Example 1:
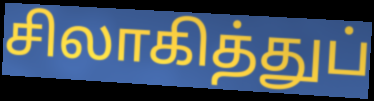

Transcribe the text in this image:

சிலாகித்துப்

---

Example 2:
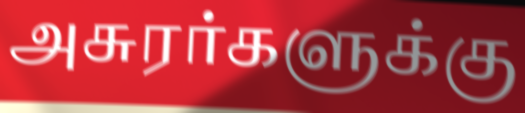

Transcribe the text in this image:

அசுரர்களுக்கு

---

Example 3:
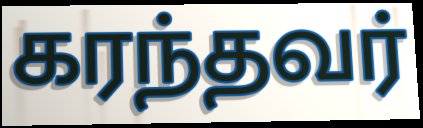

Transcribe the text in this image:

கரந்தவர்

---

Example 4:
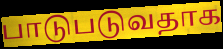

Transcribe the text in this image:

பாடுபடுவதாக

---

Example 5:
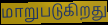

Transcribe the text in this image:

மாறுபடுகிறது